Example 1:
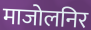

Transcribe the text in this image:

माजोलनिर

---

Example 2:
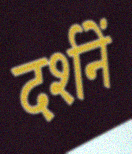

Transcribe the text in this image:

दर्शनें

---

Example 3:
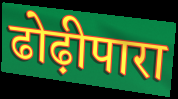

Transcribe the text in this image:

ढोढ़ीपारा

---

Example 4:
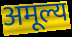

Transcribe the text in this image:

अमूल्य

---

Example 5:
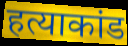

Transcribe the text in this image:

हत्याकांड